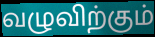
வழுவிற்கும்